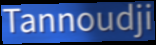
Tannoudji